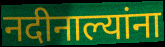
नदीनाल्यांना